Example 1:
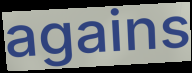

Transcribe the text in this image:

agains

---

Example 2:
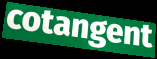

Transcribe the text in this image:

cotangent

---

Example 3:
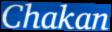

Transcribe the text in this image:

Chakan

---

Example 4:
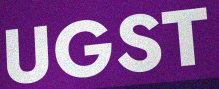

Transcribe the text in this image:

UGST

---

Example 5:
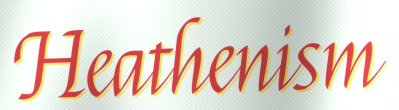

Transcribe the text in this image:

Heathenism